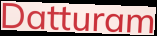
Datturam